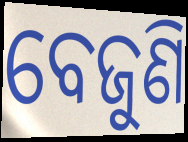
ବେଜୁଣି